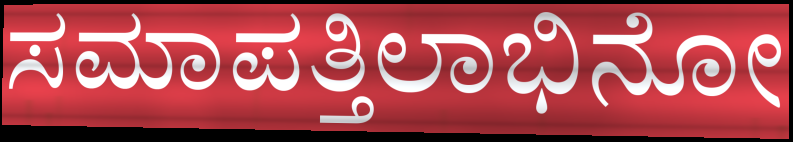
ಸಮಾಪತ್ತಿಲಾಭಿನೋ